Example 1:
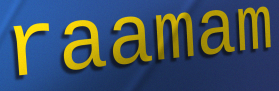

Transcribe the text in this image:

raamam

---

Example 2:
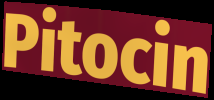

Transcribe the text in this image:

Pitocin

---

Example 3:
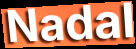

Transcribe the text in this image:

Nadal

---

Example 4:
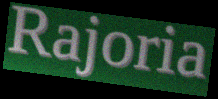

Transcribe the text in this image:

Rajoria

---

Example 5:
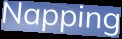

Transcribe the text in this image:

Napping